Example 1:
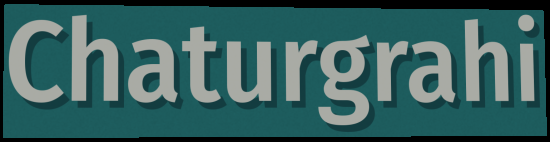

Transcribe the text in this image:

Chaturgrahi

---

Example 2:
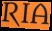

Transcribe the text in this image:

RIA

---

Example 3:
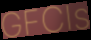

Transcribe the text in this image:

GFCIs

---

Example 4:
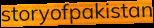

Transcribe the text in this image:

storyofpakistan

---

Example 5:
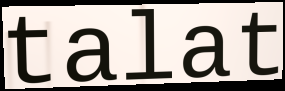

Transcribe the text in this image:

talat